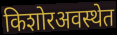
किशोरअवस्थेत